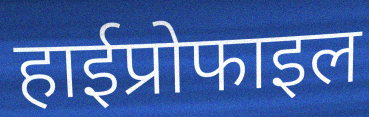
हाईप्रोफाइल